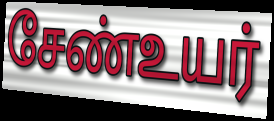
சேண்உயர்